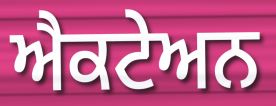
ਐਕਟੇਅਨ